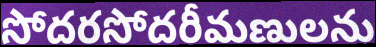
సోదరసోదరీమణులను